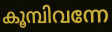
കൂമ്പിവന്നേ